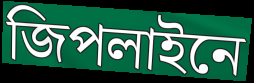
জিপলাইনে